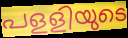
പളളിയുടെ